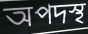
অপদস্থ